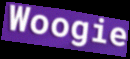
Woogie